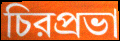
চিরপ্রভা